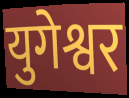
युगेश्वर